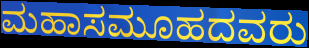
ಮಹಾಸಮೂಹದವರು